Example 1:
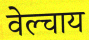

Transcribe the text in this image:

वेल्चाय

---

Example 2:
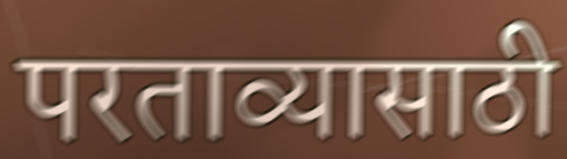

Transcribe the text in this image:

परताव्यासाठी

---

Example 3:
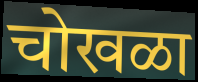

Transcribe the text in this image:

चोखळा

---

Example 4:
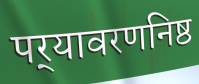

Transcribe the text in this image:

पर्यावरणनिष्ठ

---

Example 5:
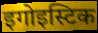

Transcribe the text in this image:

इगोइस्टिक